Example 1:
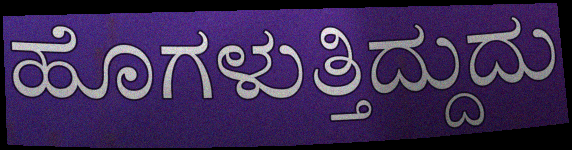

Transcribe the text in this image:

ಹೊಗಳುತ್ತಿದ್ದುದು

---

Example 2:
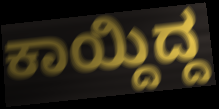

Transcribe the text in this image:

ಕಾಯ್ದಿದ್ದ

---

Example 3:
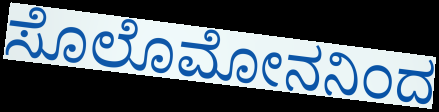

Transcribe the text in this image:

ಸೊಲೊಮೋನನಿಂದ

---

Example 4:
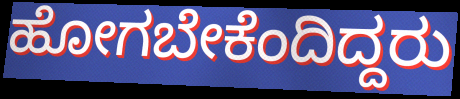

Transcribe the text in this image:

ಹೋಗಬೇಕೆಂದಿದ್ದರು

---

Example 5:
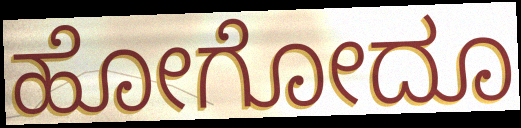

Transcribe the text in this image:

ಹೋಗೋದೂ